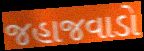
જહાજવાડો